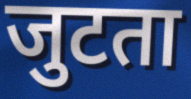
जुटता